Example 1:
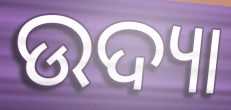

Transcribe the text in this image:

ଉଦ୍ୟା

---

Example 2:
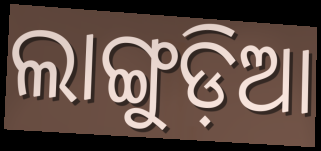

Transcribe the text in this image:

ଲାଙ୍ଗୁଡ଼ିଆ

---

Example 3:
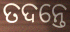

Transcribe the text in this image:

ତଦନ୍ତେ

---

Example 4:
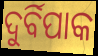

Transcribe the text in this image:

ଦୁର୍ବିପାକ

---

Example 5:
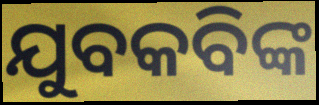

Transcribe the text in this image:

ଯୁବକବିଙ୍କ